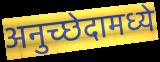
अनुच्छेदामध्ये